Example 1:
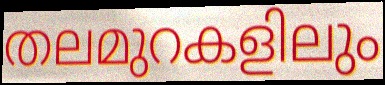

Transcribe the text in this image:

തലമുറകളിലും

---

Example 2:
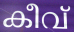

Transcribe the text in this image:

കീവ്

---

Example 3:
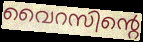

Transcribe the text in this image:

വൈറസിന്റെ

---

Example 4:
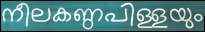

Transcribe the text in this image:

നീലകണ്ഠപിള്ളയും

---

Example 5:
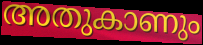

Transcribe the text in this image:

അതുകാണും